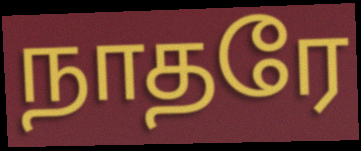
நாதரே